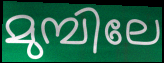
മുമ്പിലേ